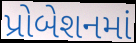
પ્રોબેશનમાં